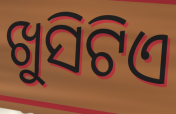
ଖୁସିଟିଏ